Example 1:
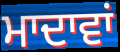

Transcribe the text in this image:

ਮਾਦਾਵਾਂ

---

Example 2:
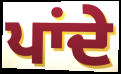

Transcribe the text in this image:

ਪਾਂਦੇ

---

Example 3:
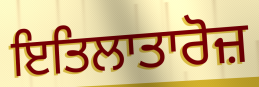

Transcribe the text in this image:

ਇਤਿਲਾਤਾਰੋਜ਼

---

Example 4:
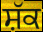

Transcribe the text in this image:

ਸ਼ੱਕ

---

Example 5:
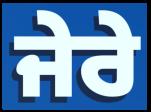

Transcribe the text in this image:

ਜੇਰੇ